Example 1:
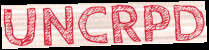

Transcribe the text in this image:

UNCRPD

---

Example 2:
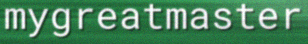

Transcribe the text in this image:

mygreatmaster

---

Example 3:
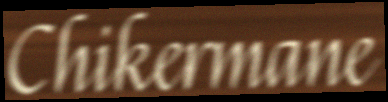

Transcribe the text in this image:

Chikermane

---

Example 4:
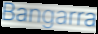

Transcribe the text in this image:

Bangarra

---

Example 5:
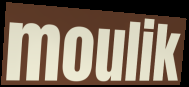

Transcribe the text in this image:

moulik